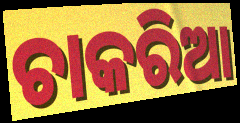
ଚାକରିଆ